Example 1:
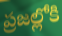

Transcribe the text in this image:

ప్రజల్లోకి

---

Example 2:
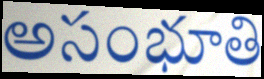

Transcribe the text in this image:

అసంభూతి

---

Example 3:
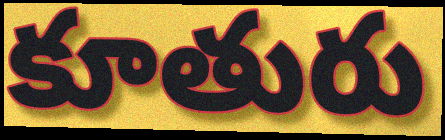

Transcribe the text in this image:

కూతురు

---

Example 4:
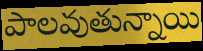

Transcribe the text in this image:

పాలవుతున్నాయి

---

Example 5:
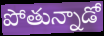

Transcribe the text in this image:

పోతున్నాడో